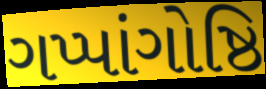
ગપ્પાંગોષ્ઠિ